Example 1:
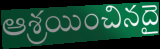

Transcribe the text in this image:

ఆశ్రయించినదై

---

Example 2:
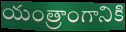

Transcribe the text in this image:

యంత్రాంగానికి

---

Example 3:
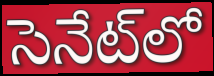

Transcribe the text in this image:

సెనేట్‌లో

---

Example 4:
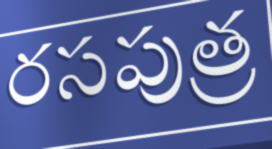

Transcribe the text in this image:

రసపుత్ర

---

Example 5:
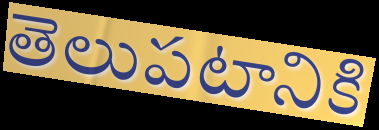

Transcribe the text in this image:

తెలుపటానికి